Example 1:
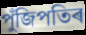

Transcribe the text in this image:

পুঁজিপতিৰ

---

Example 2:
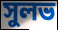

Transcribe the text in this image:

সুলভ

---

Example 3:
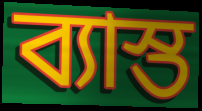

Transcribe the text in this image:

ব্যাস্ত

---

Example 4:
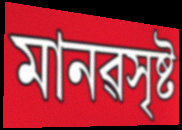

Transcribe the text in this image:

মানৱসৃষ্ট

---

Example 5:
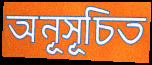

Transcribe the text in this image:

অনূসূচিত